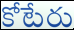
కోటేరు